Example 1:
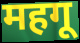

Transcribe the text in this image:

महगू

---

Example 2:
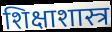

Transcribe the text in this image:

शिक्षाशास्त्र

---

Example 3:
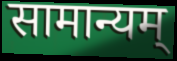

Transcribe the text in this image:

सामान्यम्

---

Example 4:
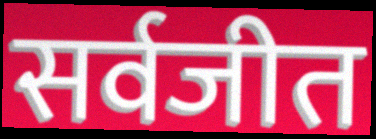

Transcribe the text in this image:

सर्वजीत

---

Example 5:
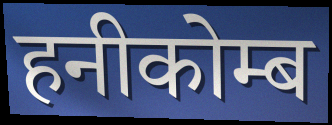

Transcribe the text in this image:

हनीकोम्ब